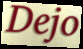
Dejo